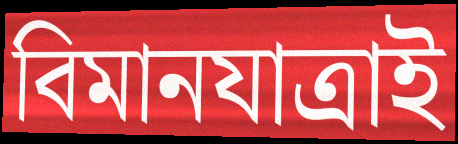
বিমানযাত্রাই